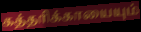
கத்தரிக்காயையும்